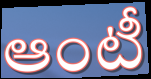
ఆంటీ